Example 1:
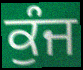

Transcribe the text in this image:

ਕੁੰਜ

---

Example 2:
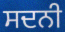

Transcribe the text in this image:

ਸਦਨੀ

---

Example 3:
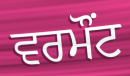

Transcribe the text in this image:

ਵਰਮੌਂਟ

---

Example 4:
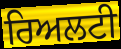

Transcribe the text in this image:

ਰਿਅਲਟੀ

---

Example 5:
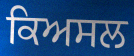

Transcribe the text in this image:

ਕਿਅਸਲ